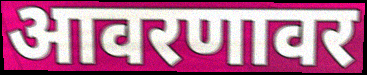
आवरणावर